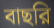
বাছরি